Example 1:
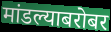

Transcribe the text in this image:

मांडल्याबरोबर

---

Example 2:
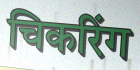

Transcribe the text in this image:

चिकरिंग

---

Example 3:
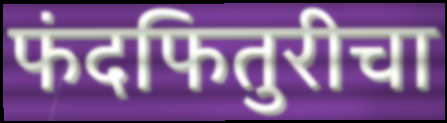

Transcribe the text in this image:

फंदफितुरीचा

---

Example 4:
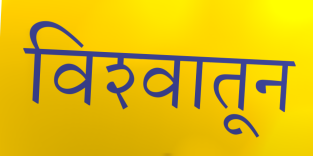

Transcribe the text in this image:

विश्वातून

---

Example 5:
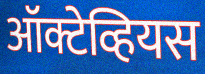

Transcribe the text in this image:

ऑक्टेव्हियस